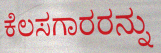
ಕೆಲಸಗಾರರನ್ನು